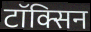
टॉक्सिन